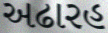
અઢારહ